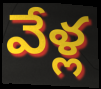
వేళ్ల